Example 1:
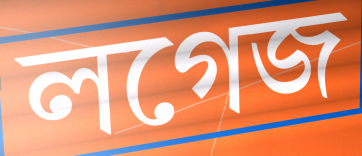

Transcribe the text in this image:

লগেজ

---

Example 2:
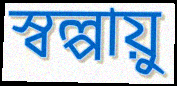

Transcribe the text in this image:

স্বল্পায়ু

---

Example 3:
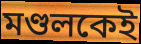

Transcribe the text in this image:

মণ্ডলকেই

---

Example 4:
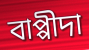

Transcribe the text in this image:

বাপ্পীদা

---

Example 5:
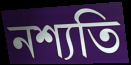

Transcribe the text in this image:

নশ্যতি